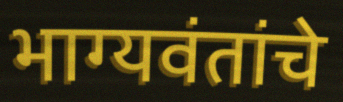
भाग्यवंतांचे